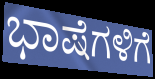
ಭಾಷೆಗಳಿಗೆ